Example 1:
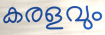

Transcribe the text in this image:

കരളവും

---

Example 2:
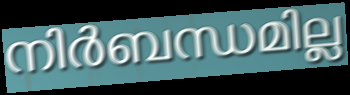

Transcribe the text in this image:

നിർബന്ധമില്ല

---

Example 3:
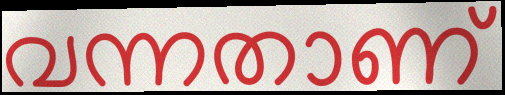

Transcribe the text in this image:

വന്നതാണ്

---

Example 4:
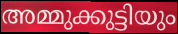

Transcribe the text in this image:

അമ്മുക്കുട്ടിയും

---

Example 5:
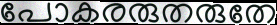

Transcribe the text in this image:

പോകരരുതരുതേ